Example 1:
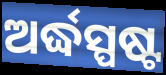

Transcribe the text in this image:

ଅର୍ଦ୍ଧସ୍ପଷ୍ଟ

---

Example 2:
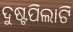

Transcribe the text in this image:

ଦୁଷ୍ଟପିଲାଟି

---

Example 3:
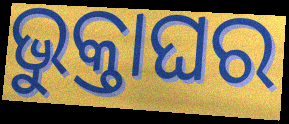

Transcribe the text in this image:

ଭୁକ୍ତାଘର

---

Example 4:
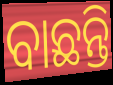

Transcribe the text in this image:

ବାଛନ୍ତି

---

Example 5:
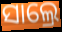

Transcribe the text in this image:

ସାଲ୍ରେ